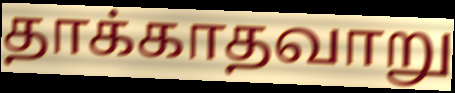
தாக்காதவாறு